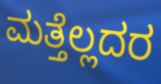
ಮತ್ತೆಲ್ಲದರ